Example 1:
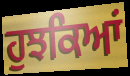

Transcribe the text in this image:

ਹੁਝਕਿਆਂ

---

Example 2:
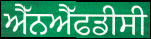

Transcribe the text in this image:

ਐੱਨਐੱਫਡੀਸੀ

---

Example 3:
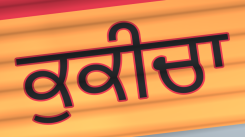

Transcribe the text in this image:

ਕੁਕੀਚਾ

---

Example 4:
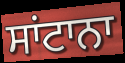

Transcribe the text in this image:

ਸਾਂਟਾਨਾ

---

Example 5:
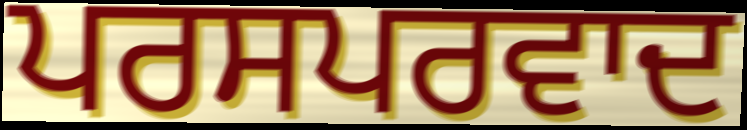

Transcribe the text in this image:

ਪਰਸਪਰਵਾਦ